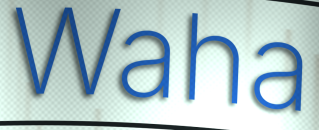
Waha